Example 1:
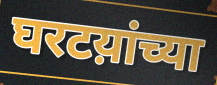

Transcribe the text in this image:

घरटय़ांच्या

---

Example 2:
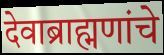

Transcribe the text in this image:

देवाब्राह्मणांचे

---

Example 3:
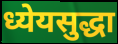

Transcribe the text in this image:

ध्येयसुद्धा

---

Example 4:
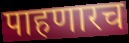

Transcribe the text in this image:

पाहणारच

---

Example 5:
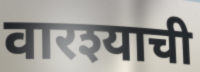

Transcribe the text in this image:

वारश्याची